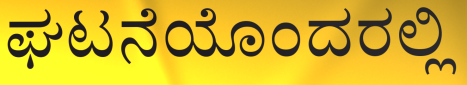
ಘಟನೆಯೊಂದರಲ್ಲಿ